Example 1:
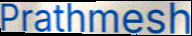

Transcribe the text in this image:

Prathmesh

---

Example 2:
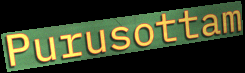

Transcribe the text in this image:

Purusottam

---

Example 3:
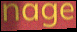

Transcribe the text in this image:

nage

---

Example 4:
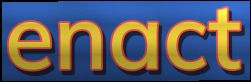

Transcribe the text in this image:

enact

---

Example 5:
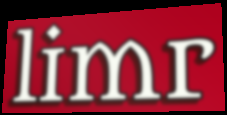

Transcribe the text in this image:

limr